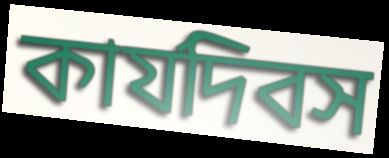
কার্যদিবস